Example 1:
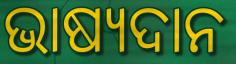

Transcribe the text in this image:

ଭାଷ୍ୟଦାନ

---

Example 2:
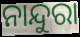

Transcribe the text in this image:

ନାନ୍ଦୁରା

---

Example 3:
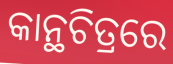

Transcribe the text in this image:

କାନ୍ଥଚିତ୍ରରେ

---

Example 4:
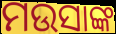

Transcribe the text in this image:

ମଉସାଙ୍କ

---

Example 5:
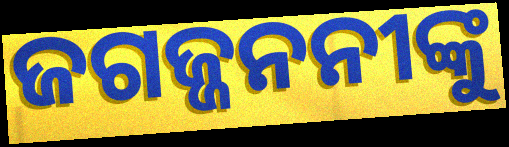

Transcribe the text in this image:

ଜଗଜ୍ଜନନୀଙ୍କୁ